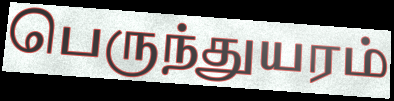
பெருந்துயரம்